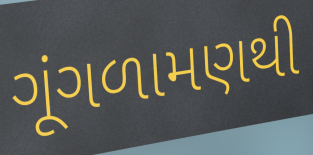
ગૂંગળામણથી